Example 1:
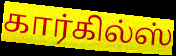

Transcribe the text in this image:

கார்கில்ஸ்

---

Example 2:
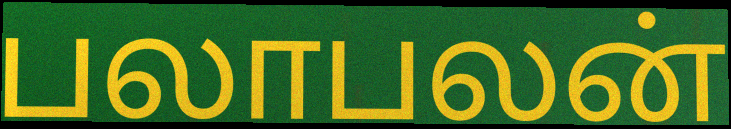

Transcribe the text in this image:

பலாபலன்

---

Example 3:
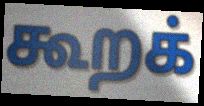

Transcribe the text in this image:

கூறக்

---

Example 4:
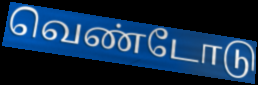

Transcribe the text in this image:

வெண்டோடு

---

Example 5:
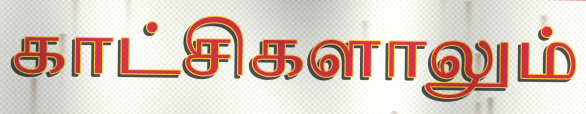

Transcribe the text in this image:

காட்சிகளாலும்